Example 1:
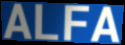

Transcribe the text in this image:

ALFA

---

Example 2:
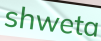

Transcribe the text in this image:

shweta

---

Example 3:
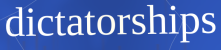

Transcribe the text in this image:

dictatorships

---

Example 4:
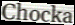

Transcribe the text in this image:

Chocka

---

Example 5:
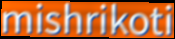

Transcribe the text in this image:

mishrikoti